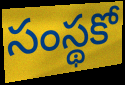
సంస్థకో